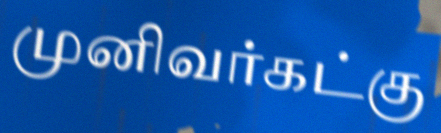
முனிவர்கட்கு